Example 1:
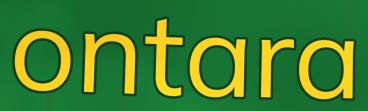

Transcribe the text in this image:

ontara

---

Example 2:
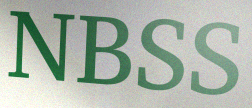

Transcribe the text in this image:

NBSS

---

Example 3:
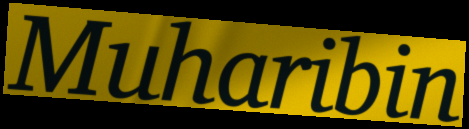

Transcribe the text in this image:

Muharibin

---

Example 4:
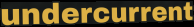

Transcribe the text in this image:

undercurrent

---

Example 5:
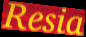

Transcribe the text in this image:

Resia